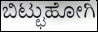
ಬಿಟ್ಟುಹೋಗಿ